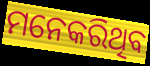
ମନେକରିଥିବ